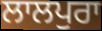
ਲਾਲਪੁਰਾ